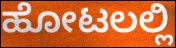
ಹೋಟಲಲ್ಲಿ